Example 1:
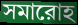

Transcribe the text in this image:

সমারোহ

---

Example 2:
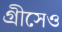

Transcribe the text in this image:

গ্রীসেও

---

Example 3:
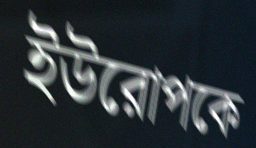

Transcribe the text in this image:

ইউরোপকে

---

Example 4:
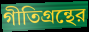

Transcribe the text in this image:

গীতিগ্রন্থের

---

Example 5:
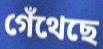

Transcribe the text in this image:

গেঁথেছে